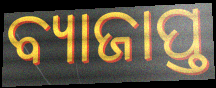
ବ୍ୟାଜାପ୍ତ